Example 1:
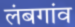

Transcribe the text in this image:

लंबगांव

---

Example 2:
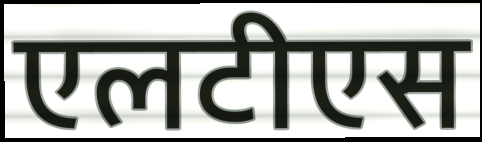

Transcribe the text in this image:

एलटीएस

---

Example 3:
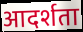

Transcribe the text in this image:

आदर्शता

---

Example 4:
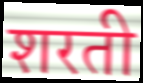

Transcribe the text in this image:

शरती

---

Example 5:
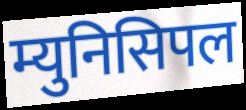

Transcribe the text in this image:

म्युनिसिपल